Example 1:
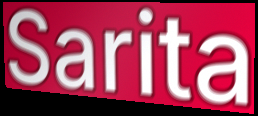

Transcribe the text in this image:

Sarita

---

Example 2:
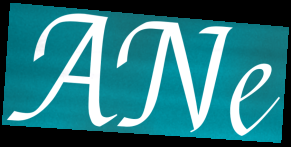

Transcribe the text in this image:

ANe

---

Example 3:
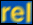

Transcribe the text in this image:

rel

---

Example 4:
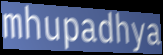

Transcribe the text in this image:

mhupadhya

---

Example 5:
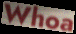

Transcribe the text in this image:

Whoa